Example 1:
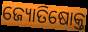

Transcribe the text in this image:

ଜ୍ୟୋତିଷୋକ୍ତ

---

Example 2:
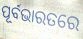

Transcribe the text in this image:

ପୂର୍ବଭାରତରେ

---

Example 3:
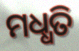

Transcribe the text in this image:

ମଧ୍ଧତି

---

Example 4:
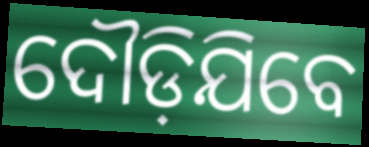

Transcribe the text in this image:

ଦୌଡ଼ିଯିବେ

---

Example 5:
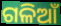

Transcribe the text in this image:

ଗଳିଆଁ